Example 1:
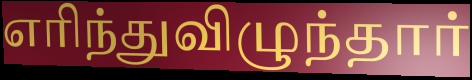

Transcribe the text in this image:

எரிந்துவிழுந்தார்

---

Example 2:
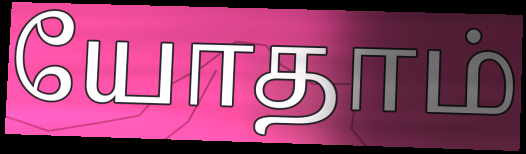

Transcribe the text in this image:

யோதாம்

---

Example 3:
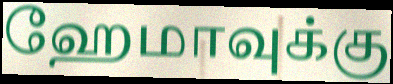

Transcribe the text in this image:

ஹேமாவுக்கு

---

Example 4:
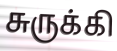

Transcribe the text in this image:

சுருக்கி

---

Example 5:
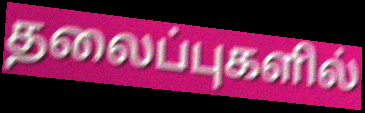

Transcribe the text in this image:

தலைப்புகளில்